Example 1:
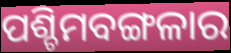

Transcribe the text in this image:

ପଶ୍ଚିମବଙ୍ଗଳାର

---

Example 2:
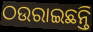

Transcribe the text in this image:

ଠଉରାଇଛନ୍ତି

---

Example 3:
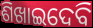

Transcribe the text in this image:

ଶିଖାଇଦେବି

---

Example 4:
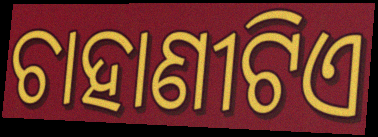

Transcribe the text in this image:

ଚାହାଣୀଟିଏ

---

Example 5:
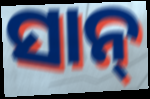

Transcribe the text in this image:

ସାନ୍